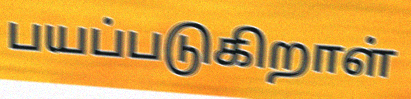
பயப்படுகிறாள்